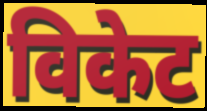
विकेट